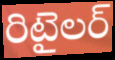
రిటైలర్